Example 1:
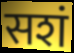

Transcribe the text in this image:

सशं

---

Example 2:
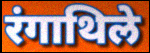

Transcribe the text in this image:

रंगाथिले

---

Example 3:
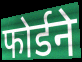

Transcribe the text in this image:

फोर्डने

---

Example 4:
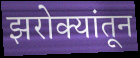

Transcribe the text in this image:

झरोक्यांतून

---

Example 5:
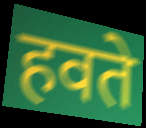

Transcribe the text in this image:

हवते